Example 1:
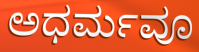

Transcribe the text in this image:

ಅಧರ್ಮವೂ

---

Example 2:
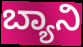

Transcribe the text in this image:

ಬ್ಯಾನಿ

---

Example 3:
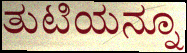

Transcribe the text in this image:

ತುಟಿಯನ್ನೂ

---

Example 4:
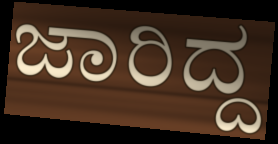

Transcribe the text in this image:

ಜಾರಿದ್ದ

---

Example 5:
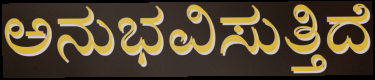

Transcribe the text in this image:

ಅನುಭವಿಸುತ್ತಿದೆ